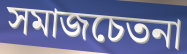
সমাজচেতনা